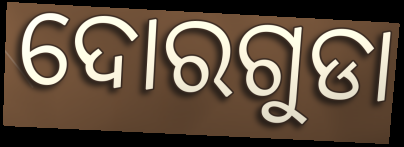
ଦୋରଗୁଡା